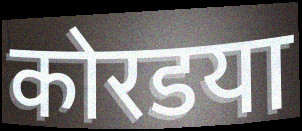
कोरडया